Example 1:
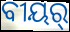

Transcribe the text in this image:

ବୀୟର୍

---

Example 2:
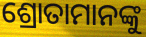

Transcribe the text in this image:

ଶ୍ରୋତାମାନଙ୍କୁ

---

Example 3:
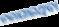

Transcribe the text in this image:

ଡକାଯାଇଥିବା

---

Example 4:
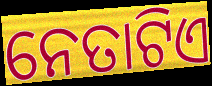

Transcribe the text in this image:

ନେତାଟିଏ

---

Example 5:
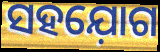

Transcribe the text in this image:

ସହଯ଼ୋଗ